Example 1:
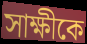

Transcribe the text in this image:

সাক্ষীকে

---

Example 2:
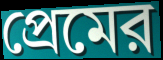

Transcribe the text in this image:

প্রেমের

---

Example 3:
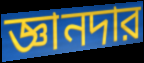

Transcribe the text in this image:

জ্ঞানদার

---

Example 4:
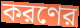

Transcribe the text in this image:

করণের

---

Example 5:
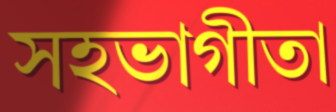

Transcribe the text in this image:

সহভাগীতা